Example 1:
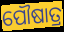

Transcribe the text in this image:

ପୌଷାତ୍ର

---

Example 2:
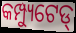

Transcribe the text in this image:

କମ୍ପ୍ୟୁଟେଡ୍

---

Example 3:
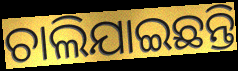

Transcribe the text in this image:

ଚାଲିଯାଇଛନ୍ତି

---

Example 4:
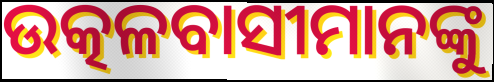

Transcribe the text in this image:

ଉତ୍କଳବାସୀମାନଙ୍କୁ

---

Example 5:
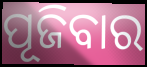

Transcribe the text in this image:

ପୂଜିବାର